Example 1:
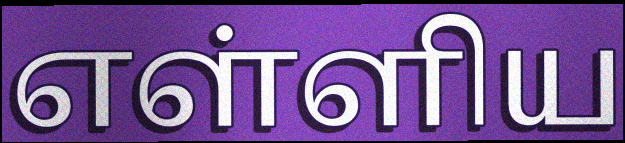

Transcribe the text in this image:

எள்ளிய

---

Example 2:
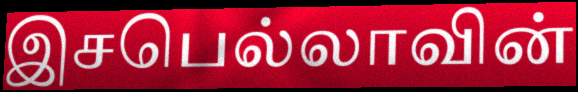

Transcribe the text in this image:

இசபெல்லாவின்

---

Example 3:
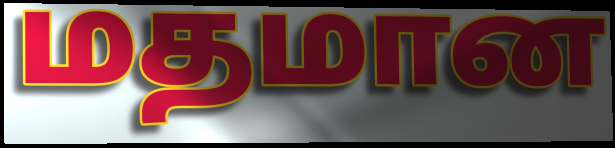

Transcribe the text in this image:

மதமான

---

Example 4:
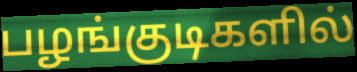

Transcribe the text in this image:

பழங்குடிகளில்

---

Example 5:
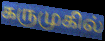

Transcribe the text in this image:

கருமுகில்